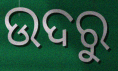
ଉଦରୁ